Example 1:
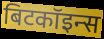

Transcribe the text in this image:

बिटकॉइन्स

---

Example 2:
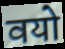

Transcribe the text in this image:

वयो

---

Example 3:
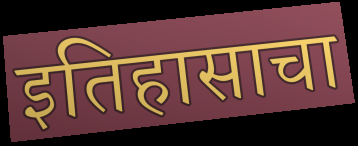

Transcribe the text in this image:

इतिहासाचा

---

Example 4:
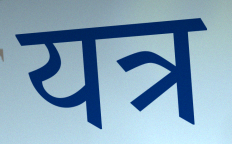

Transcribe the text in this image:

यत्र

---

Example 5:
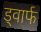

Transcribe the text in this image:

ड्वार्फ